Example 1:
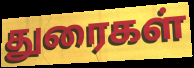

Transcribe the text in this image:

துரைகள்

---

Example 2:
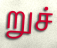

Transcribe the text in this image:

றுச்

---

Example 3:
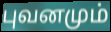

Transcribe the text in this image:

புவனமும்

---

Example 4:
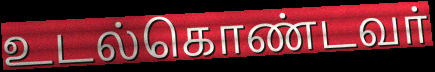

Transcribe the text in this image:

உடல்கொண்டவர்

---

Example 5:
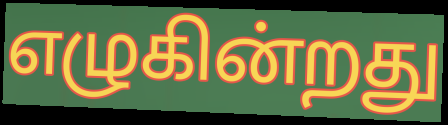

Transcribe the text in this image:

எழுகின்றது